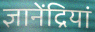
ज्ञानेंद्रियां